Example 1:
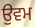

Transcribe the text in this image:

ਉਵਮ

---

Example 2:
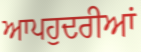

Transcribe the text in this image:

ਆਪਹੁਦਰੀਆਂ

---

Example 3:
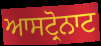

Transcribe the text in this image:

ਆਸਟ੍ਰੋਨਾਟ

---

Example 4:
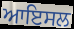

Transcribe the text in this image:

ਆਇਸਲ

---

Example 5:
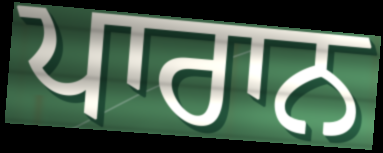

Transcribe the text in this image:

ਪਾਰਾਨ